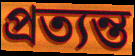
প্রত্যন্ত